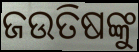
ଜଉତିଷଙ୍କୁ